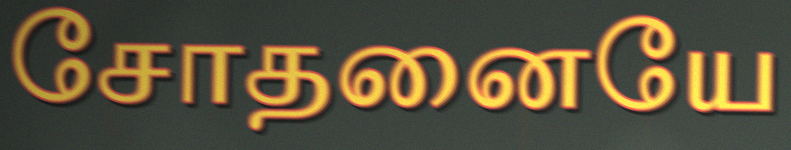
சோதனையே